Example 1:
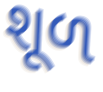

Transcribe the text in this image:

શૂળ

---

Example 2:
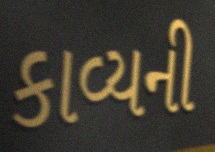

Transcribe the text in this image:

કાવ્યની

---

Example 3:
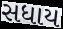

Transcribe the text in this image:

સધાય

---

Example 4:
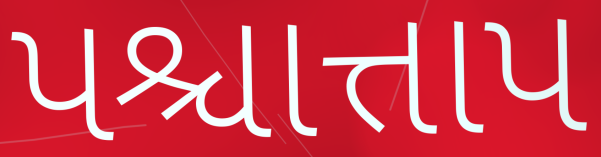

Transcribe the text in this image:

પશ્ચાત્તાપ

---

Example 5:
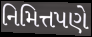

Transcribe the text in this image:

નિમિત્તપણે